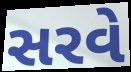
સરવે